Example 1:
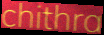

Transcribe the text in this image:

chithra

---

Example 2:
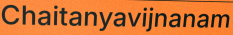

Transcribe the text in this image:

Chaitanyavijnanam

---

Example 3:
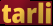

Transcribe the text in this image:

tarli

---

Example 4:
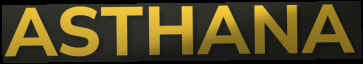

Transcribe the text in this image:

ASTHANA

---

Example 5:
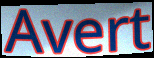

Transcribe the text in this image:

Avert